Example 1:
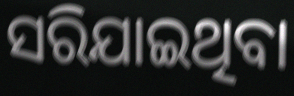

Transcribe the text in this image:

ସରିଯାଇଥିବା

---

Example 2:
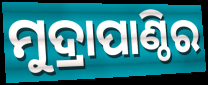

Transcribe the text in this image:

ମୁଦ୍ରାପାଣ୍ଠିର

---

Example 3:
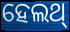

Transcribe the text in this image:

ହେଲଥ୍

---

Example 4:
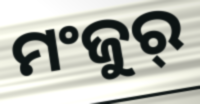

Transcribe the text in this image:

ମଂଜୁର୍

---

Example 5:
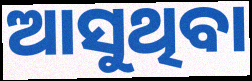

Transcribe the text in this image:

ଆସୁଥିବା